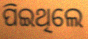
ପିଇଥିଲେ